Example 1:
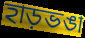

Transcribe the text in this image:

হাড়ভঙা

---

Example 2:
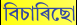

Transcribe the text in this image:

বিচাৰিছো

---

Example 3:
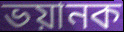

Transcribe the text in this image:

ভয়ানক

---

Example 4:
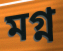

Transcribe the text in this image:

মগ্ন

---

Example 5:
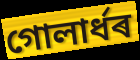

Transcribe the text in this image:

গোলাৰ্ধৰ